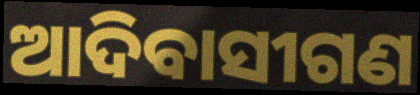
ଆଦିବାସୀଗଣ